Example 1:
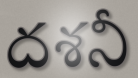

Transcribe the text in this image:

దశనీ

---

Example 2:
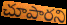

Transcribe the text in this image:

చూపారని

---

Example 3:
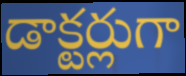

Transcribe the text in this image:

డాక్టర్లుగా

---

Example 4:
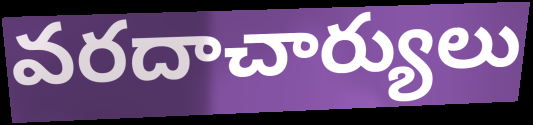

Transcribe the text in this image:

వరదాచార్యులు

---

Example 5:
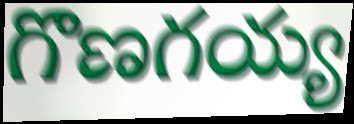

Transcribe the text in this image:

గొణగయ్య